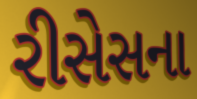
રીસેસના